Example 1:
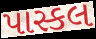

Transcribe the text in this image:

પાસ્કલ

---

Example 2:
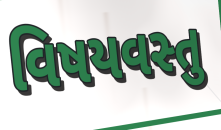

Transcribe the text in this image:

વિષયવસ્તુ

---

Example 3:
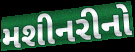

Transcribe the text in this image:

મશીનરીનો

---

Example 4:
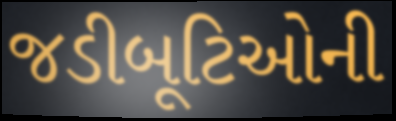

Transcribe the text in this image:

જડીબૂટિઓની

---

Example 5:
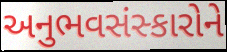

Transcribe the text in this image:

અનુભવસંસ્કારોને